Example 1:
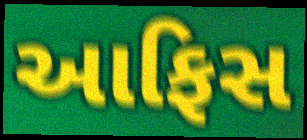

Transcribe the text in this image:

આફિસ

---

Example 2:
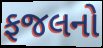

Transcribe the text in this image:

ફજલનો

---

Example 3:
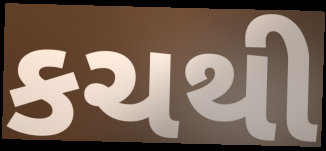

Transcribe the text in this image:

કચથી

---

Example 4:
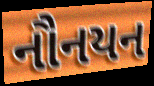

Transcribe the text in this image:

નૌનયન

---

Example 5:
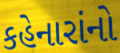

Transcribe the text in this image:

કહેનારાંનો